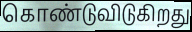
கொண்டுவிடுகிறது